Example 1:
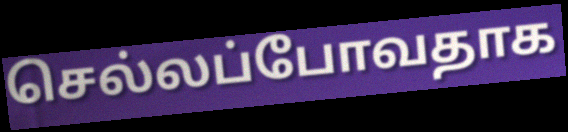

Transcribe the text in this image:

செல்லப்போவதாக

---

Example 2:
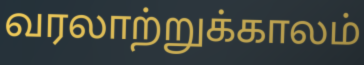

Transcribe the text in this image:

வரலாற்றுக்காலம்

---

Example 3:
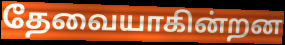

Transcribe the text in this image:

தேவையாகின்றன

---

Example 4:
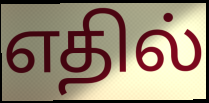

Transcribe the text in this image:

எதில்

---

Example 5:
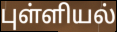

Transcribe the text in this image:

புள்ளியல்